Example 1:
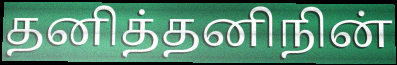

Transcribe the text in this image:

தனித்தனிநின்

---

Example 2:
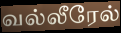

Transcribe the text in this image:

வல்லீரேல்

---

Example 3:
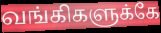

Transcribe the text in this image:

வங்கிகளுக்கே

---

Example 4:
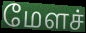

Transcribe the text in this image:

மேளச்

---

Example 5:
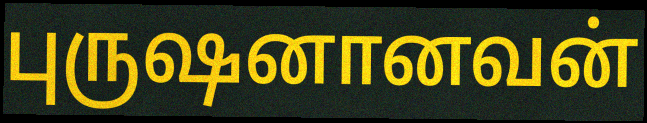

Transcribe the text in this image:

புருஷனானவன்